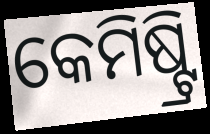
କେମିଷ୍ଟ୍ରି